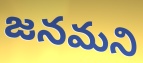
జనమని